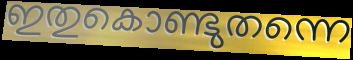
ഇതുകൊണ്ടുതന്നെ